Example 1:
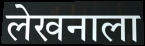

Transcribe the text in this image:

लेखनाला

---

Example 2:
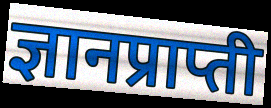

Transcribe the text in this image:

ज्ञानप्राप्ती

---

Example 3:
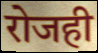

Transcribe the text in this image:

रोजही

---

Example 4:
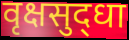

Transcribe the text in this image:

वृक्षसुद्धा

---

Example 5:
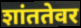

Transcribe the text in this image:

शांततेवर